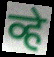
व्हे